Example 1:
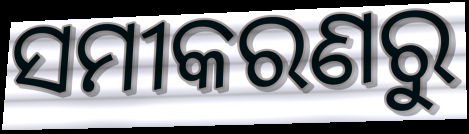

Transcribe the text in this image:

ସମୀକରଣରୁ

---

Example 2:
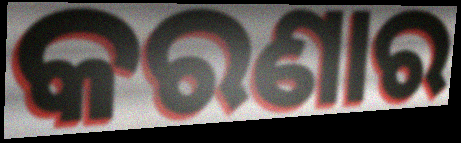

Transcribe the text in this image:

କରଣାର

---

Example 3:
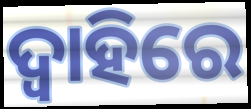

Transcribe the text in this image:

ଦ୍ୱାହିରେ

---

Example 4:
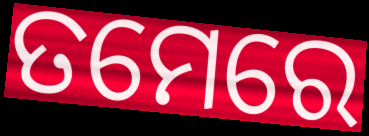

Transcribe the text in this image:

ତମେରେ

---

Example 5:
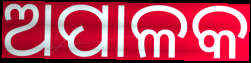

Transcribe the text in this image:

ଅପାଳକ